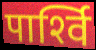
पार्श्वि